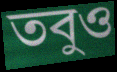
তবুও